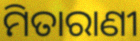
ମିତାରାଣୀ